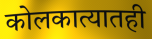
कोलकात्यातही